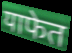
याफेत